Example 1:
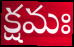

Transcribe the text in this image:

క్షమః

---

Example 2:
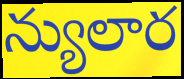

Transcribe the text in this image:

న్యులార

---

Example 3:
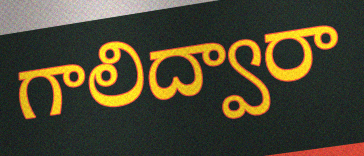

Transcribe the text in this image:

గాలిద్వారా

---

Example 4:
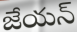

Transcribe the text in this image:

జేయన్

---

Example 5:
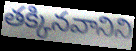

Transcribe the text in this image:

తక్కినవానిని